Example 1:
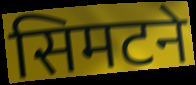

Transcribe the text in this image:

सिमटने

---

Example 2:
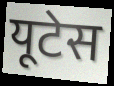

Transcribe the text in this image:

यूटेस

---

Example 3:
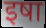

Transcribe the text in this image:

इषा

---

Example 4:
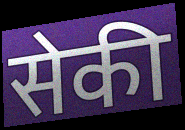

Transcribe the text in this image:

सेकी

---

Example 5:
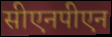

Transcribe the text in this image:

सीएनपीएन